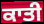
ਕਾਤੀ